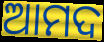
ଆମଦ